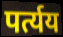
पर्त्यय